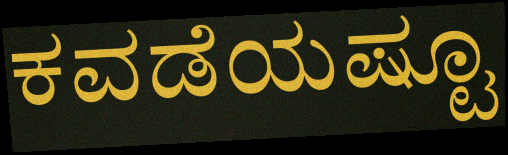
ಕವಡೆಯಷ್ಟೂ